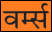
वर्म्स